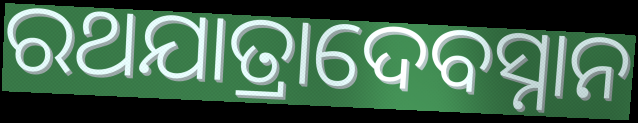
ରଥଯାତ୍ରାଦେବସ୍ନାନ